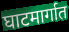
घाटमार्गात